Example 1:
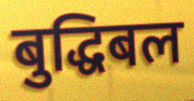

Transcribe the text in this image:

बुद्धिबल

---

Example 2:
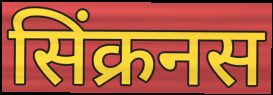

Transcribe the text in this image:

सिंक्रनस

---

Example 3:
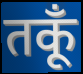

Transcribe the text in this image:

तकूँ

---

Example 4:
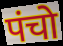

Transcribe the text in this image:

पंचो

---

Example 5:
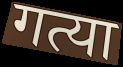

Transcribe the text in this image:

गत्या